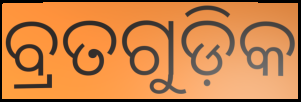
ବ୍ରତଗୁଡ଼ିକ